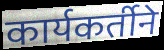
कार्यकर्तीने